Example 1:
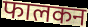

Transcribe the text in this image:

फालकन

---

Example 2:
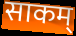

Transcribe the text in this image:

साकम्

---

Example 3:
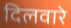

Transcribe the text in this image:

दिलवारे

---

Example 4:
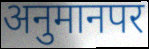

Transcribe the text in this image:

अनुमानपर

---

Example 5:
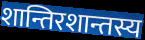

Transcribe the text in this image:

शान्तिरशान्तस्य